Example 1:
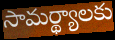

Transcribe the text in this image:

సామర్థ్యాలకు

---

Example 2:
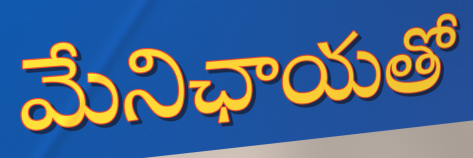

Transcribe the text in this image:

మేనిఛాయతో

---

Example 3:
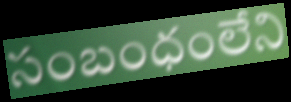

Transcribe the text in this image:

సంబంధంలేని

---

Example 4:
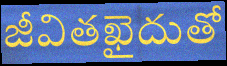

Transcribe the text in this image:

జీవితఖైదుతో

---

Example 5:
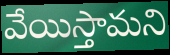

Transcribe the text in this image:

వేయిస్తామని